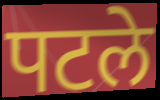
पटले